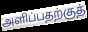
அளிப்பதற்குத்